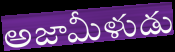
అజామీళుడు